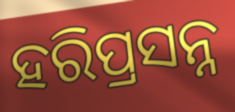
ହରିପ୍ରସନ୍ନ